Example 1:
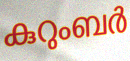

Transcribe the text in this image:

കുറുംബർ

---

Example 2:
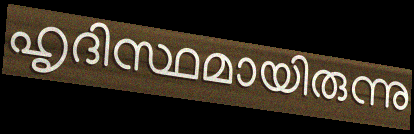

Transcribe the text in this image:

ഹൃദിസ്ഥമായിരുന്നു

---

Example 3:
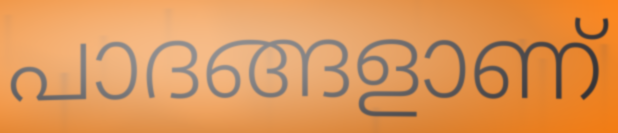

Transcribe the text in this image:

പാദങ്ങളാണ്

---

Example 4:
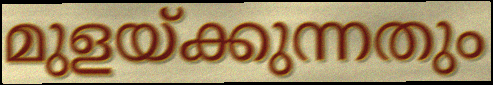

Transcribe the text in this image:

മുളയ്ക്കുന്നതും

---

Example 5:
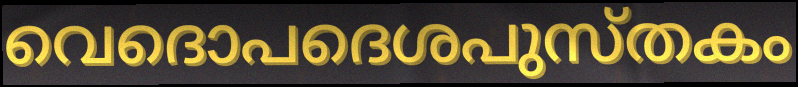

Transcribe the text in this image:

വെദൊപദെശപുസ്തകം